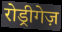
रोड्रीगेज़